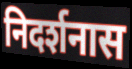
निदर्शनास